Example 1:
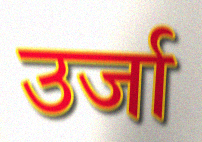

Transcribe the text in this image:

उर्जा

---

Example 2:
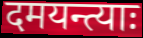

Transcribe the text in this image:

दमयन्त्याः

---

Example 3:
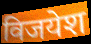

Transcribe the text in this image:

विजयेश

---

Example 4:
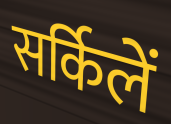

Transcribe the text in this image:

सर्किलें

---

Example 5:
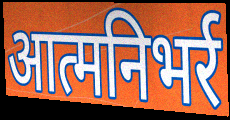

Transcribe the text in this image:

आत्मनिभर्र